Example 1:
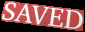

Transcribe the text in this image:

SAVED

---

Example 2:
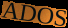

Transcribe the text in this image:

ADOS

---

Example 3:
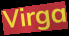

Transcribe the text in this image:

Virga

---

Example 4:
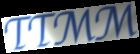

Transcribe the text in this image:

TTMM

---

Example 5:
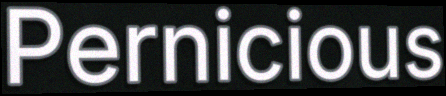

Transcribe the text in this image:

Pernicious